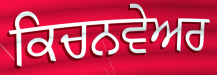
ਕਿਚਨਵੇਅਰ